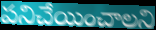
పనిచేయించాలని